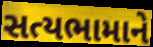
સત્યભામાને